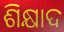
ଶିକ୍ଷାଦ